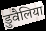
डुवैलिया